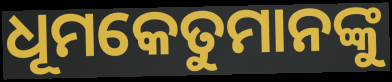
ଧୂମକେତୁମାନଙ୍କୁ